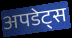
अपडेट्स